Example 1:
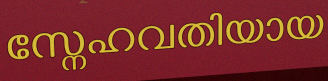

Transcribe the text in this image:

സ്നേഹവതിയായ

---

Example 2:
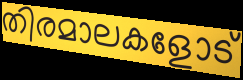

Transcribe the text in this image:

തിരമാലകളോട്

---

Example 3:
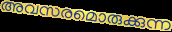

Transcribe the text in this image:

അവസരമൊരുക്കുന്ന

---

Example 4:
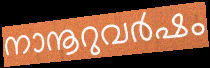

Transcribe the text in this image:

നാനൂറുവർഷം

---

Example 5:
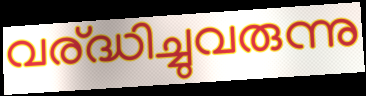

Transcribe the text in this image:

വര്ദ്ധിച്ചുവരുന്നു